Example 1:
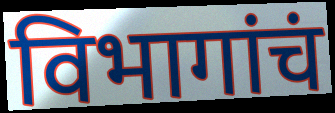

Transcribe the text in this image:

विभागांचं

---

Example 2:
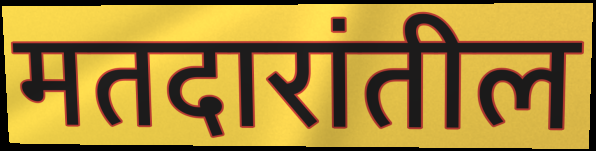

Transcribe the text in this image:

मतदारांतील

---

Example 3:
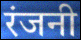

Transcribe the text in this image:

रंजनी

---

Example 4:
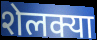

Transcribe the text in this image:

शेलक्या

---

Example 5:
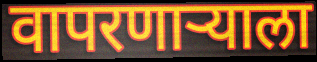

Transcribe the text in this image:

वापरणार्‍याला